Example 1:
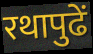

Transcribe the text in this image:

रथापुढें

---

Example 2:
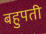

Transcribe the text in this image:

बहुपती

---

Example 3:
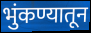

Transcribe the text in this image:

भुंकण्यातून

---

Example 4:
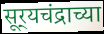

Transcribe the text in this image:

सूर्यचंद्राच्या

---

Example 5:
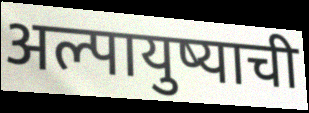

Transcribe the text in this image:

अल्पायुष्याची